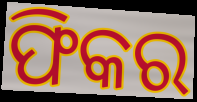
ଫିକର